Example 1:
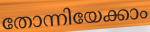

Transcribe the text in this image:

തോന്നിയേക്കാം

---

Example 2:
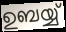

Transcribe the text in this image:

ഉബയ്യ്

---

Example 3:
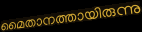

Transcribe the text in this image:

മൈതാനത്തായിരുന്നു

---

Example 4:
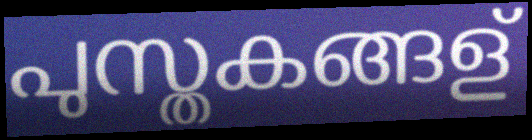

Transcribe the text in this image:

പുസ്തകങ്ങള്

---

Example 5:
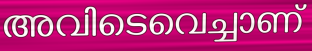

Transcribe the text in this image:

അവിടെവെച്ചാണ്